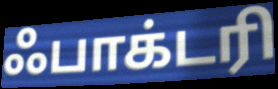
ஃபாக்டரி